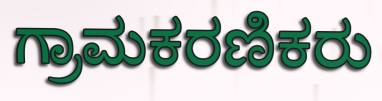
ಗ್ರಾಮಕರಣಿಕರು